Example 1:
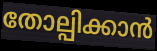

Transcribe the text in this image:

തോല്പിക്കാൻ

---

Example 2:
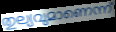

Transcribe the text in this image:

തുല്യവുമാണെന്ന്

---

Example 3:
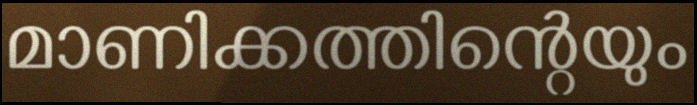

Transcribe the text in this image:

മാണിക്കത്തിന്റെയും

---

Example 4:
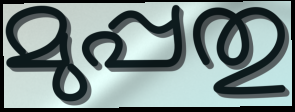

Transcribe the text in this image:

മുപ്പതു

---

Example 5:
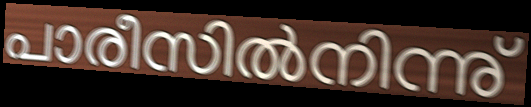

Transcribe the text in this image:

പാരീസിൽനിന്നു്